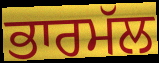
ਭਾਰਮੱਲ